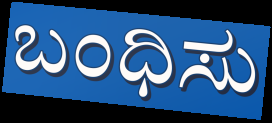
ಬಂಧಿಸು